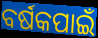
ବର୍ଷକପାଇଁ